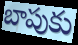
బాపుకు